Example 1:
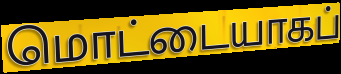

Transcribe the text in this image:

மொட்டையாகப்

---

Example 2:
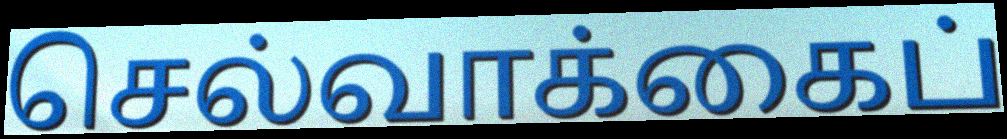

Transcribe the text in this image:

செல்வாக்கைப்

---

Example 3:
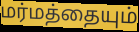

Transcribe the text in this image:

மர்மத்தையும்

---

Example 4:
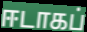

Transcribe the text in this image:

ஈடாகப்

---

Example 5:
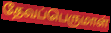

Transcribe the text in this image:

தேவப்பெருமாள்